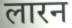
लारन